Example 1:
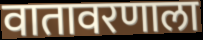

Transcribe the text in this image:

वातावरणाला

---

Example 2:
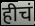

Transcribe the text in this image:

हीचं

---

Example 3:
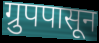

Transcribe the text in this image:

ग्रुपपासून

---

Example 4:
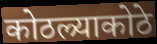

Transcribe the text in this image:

कोठल्याकोठे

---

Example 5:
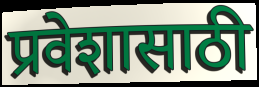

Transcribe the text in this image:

प्रवेशासाठी